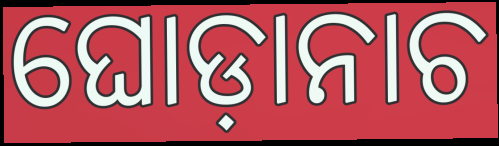
ଘୋଡ଼ାନାଚ